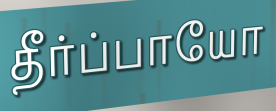
தீர்ப்பாயோ